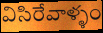
విసిరేవాళ్ళం